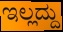
ಇಲ್ಲದ್ದು